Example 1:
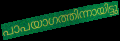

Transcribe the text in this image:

പാപയാഗത്തിന്നായിട്ടു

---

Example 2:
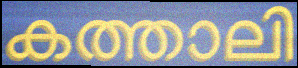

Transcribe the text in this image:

കത്താലി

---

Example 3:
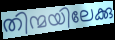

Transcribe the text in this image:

തിന്മയിലേക്കു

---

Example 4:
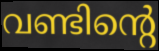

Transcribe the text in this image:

വണ്ടിന്റെ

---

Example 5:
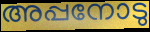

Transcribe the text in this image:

അപ്പനോടു